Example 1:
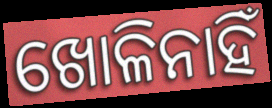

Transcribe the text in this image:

ଖୋଳିନାହିଁ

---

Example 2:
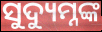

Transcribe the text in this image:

ସୁଦ୍ୟୁମ୍ନଙ୍କ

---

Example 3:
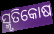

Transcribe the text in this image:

ସ୍ମୃତିକୋଷ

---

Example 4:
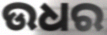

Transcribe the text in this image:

ଉଧର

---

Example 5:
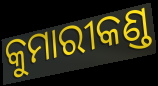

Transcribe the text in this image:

କୁମାରୀକଣ୍ଡ